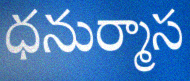
ధనుర్మాస